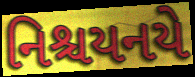
નિશ્ચયનયે